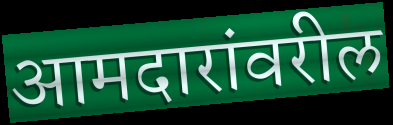
आमदारांवरील